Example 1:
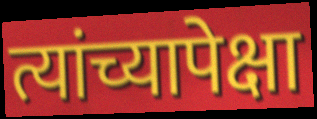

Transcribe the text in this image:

त्यांच्यापेक्षा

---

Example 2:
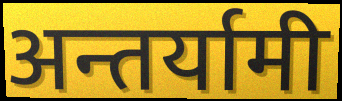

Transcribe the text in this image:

अन्तर्यामी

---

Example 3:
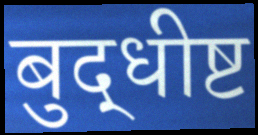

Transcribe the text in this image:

बुद्धीष्ट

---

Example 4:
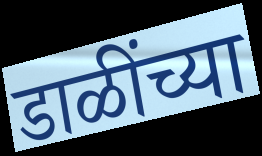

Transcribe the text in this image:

डाळींच्या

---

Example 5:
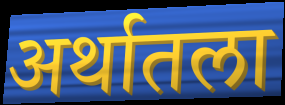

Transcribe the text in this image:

अर्थातला